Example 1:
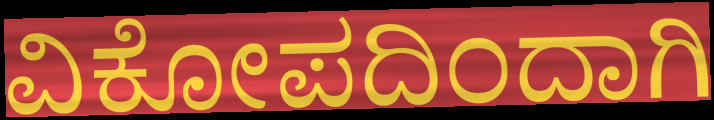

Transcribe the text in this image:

ವಿಕೋಪದಿಂದಾಗಿ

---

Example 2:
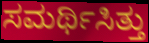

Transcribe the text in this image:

ಸಮರ್ಥಿಸಿತ್ತು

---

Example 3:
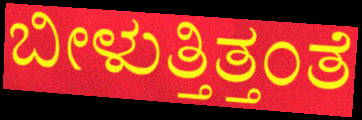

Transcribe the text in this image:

ಬೀಳುತ್ತಿತ್ತಂತೆ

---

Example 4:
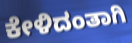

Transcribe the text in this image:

ಕೇಳಿದಂತಾಗಿ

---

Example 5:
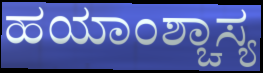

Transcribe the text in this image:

ಹಯಾಂಶ್ಚಾಸ್ಯ